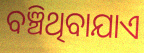
ବଞ୍ଚିଥିବାଯାଏ